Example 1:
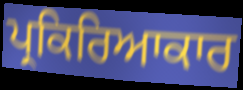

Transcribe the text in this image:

ਪ੍ਰਕਿਰਿਆਕਾਰ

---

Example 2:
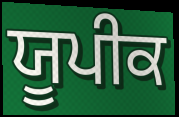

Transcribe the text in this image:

ਯੂਪੀਕ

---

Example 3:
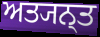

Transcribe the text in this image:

ਅਤ੍ਯਨ੍ਤ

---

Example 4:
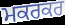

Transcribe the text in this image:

ਮਕਰਕਰ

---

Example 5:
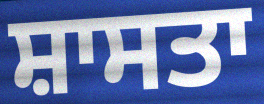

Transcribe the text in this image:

ਸ਼ਾਸਤਾ